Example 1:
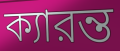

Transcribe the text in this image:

ক্যারন্ত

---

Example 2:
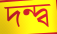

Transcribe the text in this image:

দন্দ্ব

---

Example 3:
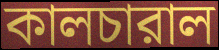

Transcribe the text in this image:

কালচারাল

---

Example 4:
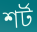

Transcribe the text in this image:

শর্ট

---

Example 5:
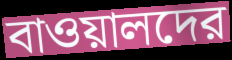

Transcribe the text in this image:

বাওয়ালদের